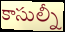
కాసుల్నీ